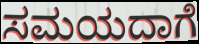
ಸಮಯದಾಗೆ